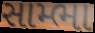
સામ્ભા